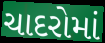
ચાદરોમાં